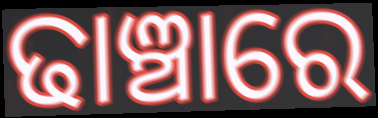
ଢାଞ୍ଚାରେ